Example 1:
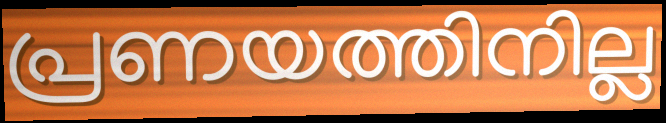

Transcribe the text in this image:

പ്രണയത്തിനില്ല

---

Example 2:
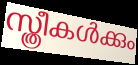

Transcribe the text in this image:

സ്ത്രീകൾക്കും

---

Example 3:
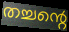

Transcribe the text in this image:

തച്ചന്റെ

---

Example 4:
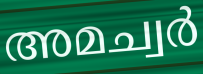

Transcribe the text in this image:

അമച്വർ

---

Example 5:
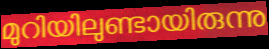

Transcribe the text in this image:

മുറിയിലുണ്ടായിരുന്നു